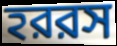
হররস